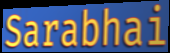
Sarabhai